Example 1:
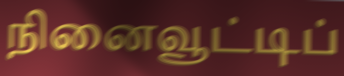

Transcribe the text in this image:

நினைவூட்டிப்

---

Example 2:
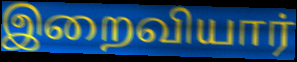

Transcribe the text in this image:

இறைவியார்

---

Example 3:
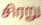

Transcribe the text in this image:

சிரறு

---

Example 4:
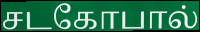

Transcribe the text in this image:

சடகோபால்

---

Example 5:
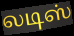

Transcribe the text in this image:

லடிஸ்